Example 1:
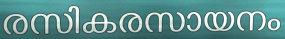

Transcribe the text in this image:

രസികരസായനം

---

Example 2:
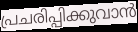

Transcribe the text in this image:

പ്രചരിപ്പിക്കുവാൻ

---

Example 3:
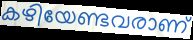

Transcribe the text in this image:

കഴിയേണ്ടവരാണ്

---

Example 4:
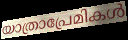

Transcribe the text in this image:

യാത്രാപ്രേമികൾ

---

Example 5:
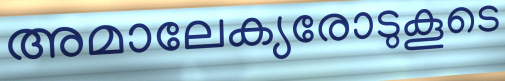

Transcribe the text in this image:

അമാലേക്യരോടുകൂടെ